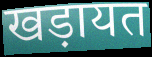
खड़ायत